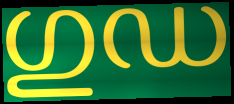
ഗുഡ